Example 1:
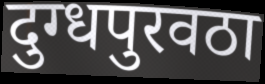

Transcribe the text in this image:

दुग्धपुरवठा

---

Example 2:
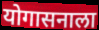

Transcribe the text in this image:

योगासनाला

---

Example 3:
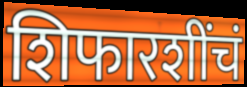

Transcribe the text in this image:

शिफारशींचं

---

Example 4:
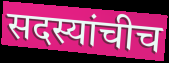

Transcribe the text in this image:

सदस्यांचीच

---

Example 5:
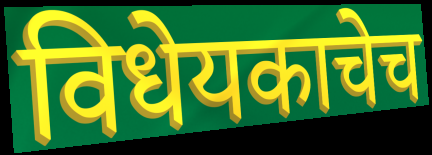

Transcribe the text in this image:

विधेयकाचेच